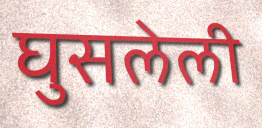
घुसलेली